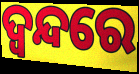
ଦ୍ୱନ୍ଦରେ